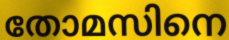
തോമസിനെ